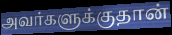
அவர்களுக்குதான்